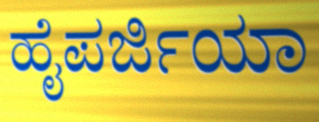
ಹೈಪರ್ಜಿಯಾ